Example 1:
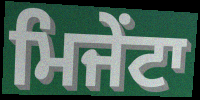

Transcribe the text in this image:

ਮਿਜੇਂਟਾ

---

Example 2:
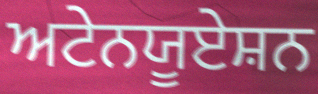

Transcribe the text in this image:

ਅਟੇਨਯੂਏਸ਼ਨ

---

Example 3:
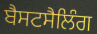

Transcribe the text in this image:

ਬੈਸਟਸੈਲਿੰਗ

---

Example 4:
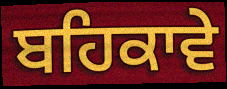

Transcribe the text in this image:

ਬਹਿਕਾਵੇ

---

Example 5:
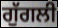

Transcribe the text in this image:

ਗੁੱਗਲੀ